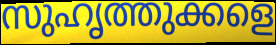
സുഹൃത്തുക്കളെ